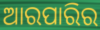
ଆରପାରିର